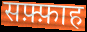
सफ़्फ़ाह